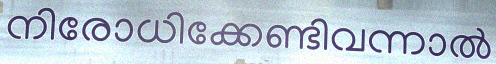
നിരോധിക്കേണ്ടിവന്നാൽ